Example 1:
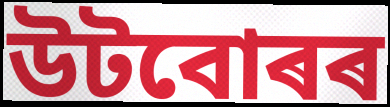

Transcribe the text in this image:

উটবোৰৰ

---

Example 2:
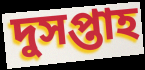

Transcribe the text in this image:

দুসপ্তাহ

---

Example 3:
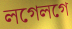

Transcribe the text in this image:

লগেলগে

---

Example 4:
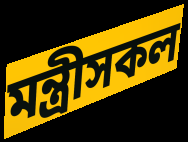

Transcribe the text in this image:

মন্ত্ৰীসকল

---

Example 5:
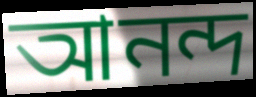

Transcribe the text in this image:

আনন্দ